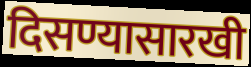
दिसण्यासारखी